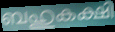
ബഹുകക്ഷി